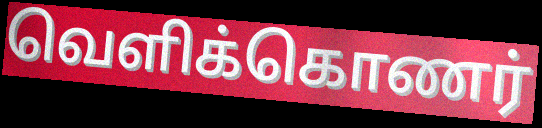
வெளிக்கொணர்